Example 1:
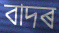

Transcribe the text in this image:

বাদৰ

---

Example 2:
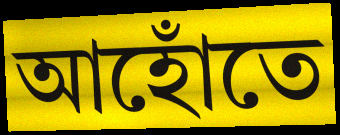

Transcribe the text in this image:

আহোঁতে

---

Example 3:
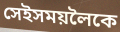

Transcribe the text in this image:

সেইসময়লৈকে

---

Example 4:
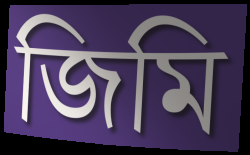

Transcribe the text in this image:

জিমি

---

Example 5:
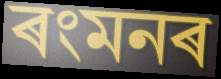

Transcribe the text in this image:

ৰংমনৰ